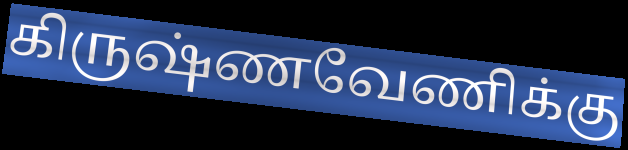
கிருஷ்ணவேணிக்கு